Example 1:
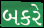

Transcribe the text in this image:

બકરે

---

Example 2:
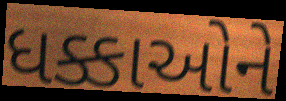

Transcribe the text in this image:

ધક્કાઓને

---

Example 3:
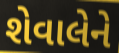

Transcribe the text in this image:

શેવાલેને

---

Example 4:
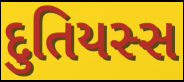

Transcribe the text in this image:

દુતિયસ્સ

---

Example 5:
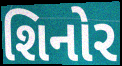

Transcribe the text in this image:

શિનોર